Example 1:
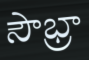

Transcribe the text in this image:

సౌభ్రా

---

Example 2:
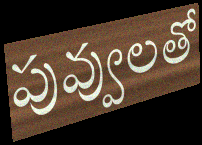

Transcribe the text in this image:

పువ్వులతో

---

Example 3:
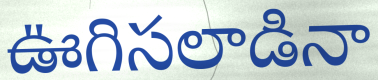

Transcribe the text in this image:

ఊగిసలాడినా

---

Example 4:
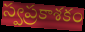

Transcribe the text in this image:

స్వప్రకాశకం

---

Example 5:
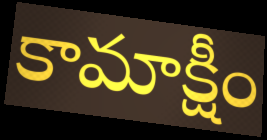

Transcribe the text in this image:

కామాక్షీం